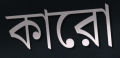
কারো